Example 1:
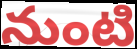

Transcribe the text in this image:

నుంటి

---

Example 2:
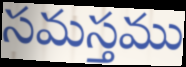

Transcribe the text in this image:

సమస్తము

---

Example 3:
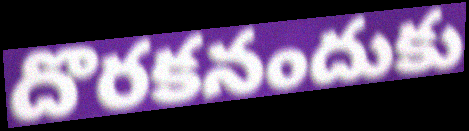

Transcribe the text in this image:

దొరకనందుకు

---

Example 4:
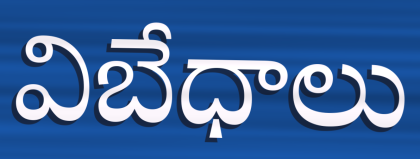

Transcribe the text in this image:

విబేధాలు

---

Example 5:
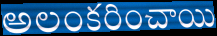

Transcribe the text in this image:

అలంకరించాయి